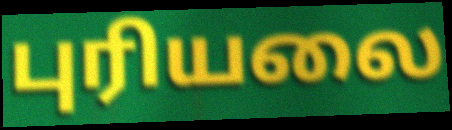
புரியலை